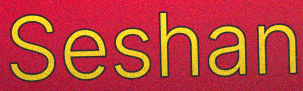
Seshan